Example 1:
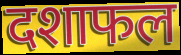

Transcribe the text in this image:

दशाफल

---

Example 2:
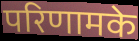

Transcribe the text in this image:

परिणामके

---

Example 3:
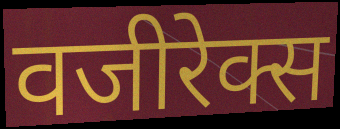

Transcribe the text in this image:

वजीरेक्स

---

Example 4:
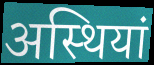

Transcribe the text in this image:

अस्थियां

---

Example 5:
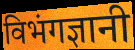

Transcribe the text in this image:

विभंगज्ञानी